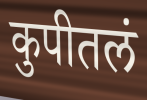
कुपीतलं